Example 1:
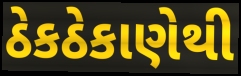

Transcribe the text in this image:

ઠેકઠેકાણેથી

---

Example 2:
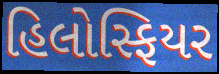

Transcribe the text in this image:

હિલોસ્ફિયર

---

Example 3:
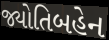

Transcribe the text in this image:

જ્યોતિબહેન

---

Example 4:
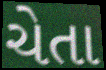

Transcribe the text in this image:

ચેતા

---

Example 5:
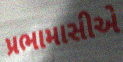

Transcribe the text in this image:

પ્રભામાસીએ